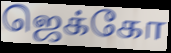
ஜெக்கோ